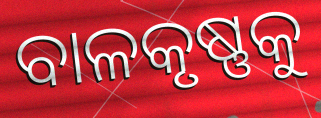
ବାଳକୃଷ୍ଣକୁ